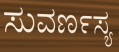
ಸುವರ್ಣಸ್ಯ